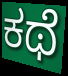
ಕಥೆ